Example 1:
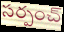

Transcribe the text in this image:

సర్పంచ్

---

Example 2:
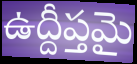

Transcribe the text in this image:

ఉద్దీప్తమై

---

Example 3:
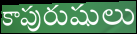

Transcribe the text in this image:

కాపురుషులు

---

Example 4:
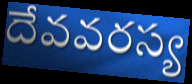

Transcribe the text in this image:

దేవవరస్య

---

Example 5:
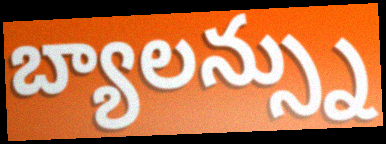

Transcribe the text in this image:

బ్యాలన్స్ను